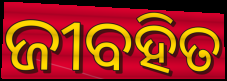
ଜୀବହିତ